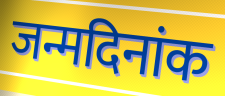
जन्मदिनांक